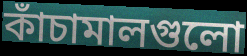
কাঁচামালগুলো